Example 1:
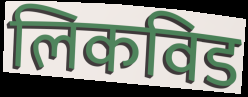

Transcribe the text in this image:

लिकविड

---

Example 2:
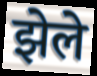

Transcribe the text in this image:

झेले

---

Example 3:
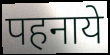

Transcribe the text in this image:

पहनाये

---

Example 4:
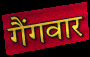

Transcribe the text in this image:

गैंगवार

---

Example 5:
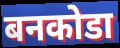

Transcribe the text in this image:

बनकोडा